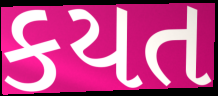
કયત